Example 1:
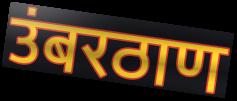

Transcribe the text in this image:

उंबरठाण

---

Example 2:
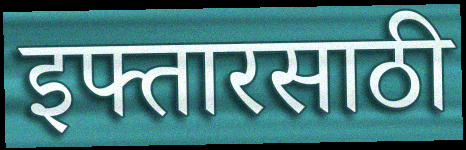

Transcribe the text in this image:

इफ्तारसाठी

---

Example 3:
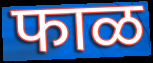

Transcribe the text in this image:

फाळ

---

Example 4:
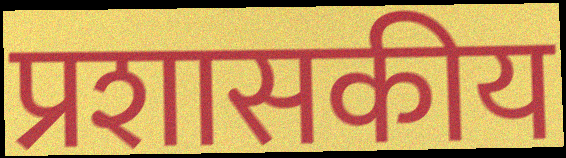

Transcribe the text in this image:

प्रशासकीय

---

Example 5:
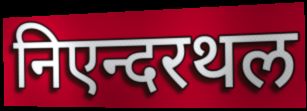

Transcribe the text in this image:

निएन्दरथल